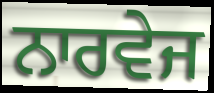
ਨਾਰਵੇਜ